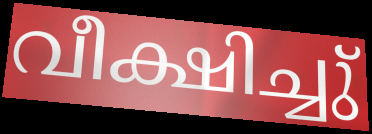
വീക്ഷിച്ചു്